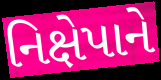
નિક્ષેપાને